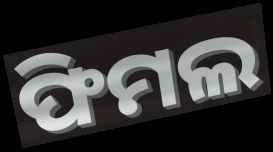
ଫିମଲ